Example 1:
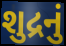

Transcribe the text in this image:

શુદ્રનું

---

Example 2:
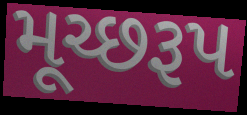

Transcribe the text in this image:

મૂચ્છરૂપ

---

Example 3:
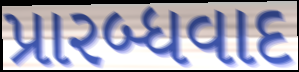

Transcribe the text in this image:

પ્રારબ્ધવાદ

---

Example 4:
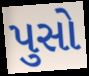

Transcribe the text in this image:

પુસો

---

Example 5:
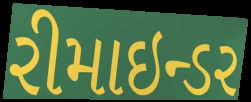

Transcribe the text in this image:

રીમાઇન્ડર